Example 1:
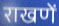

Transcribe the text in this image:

राखणें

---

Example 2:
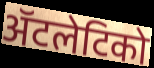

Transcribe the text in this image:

ॲटलेटिको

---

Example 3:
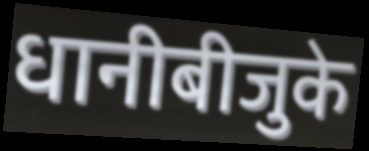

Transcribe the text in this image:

धानीबीजुके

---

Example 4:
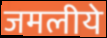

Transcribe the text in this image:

जमलीये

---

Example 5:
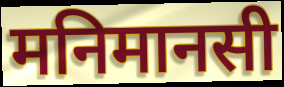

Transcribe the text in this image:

मनिमानसी